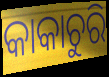
କାକାଚୁରି